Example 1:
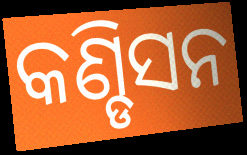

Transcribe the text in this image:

କଣ୍ଡିସନ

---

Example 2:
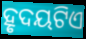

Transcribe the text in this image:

ହୃଦୟଟିଏ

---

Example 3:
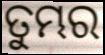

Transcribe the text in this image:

ତୁମ୍ଭର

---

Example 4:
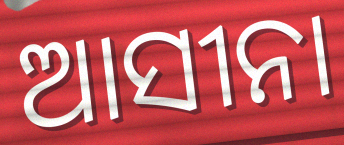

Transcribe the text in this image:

ଆସୀନା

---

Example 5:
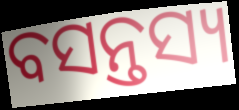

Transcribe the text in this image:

ବସନ୍ତସ୍ୟ